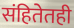
संहितेतही